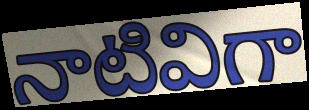
నాటివిగా